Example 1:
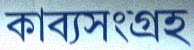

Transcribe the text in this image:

কাব্যসংগ্রহ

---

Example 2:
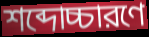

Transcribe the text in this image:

শব্দোচ্চারণে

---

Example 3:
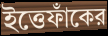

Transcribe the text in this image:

ইত্তেফাঁকের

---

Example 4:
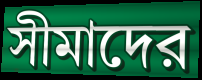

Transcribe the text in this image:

সীমাদের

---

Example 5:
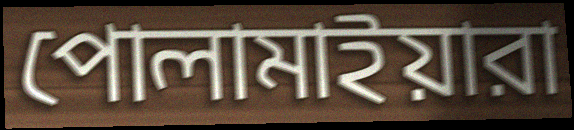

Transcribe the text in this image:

পোলামাইয়ারা